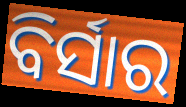
ବିର୍ସାର